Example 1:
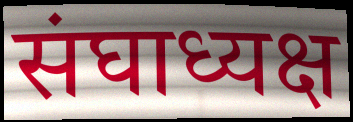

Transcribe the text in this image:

संघाध्यक्ष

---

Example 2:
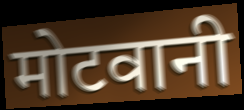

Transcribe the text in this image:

मोटवानी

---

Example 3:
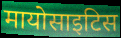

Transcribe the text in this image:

मायोसाइटिस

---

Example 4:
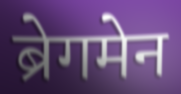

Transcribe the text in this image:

ब्रेगमेन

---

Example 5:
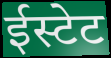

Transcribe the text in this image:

ईस्टेट